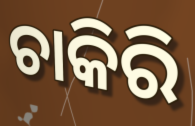
ଚାକିରି